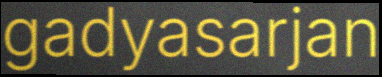
gadyasarjan